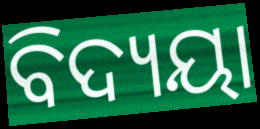
ବିଦ୍ୟୟା